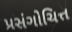
પ્રસંગોચિત્ત